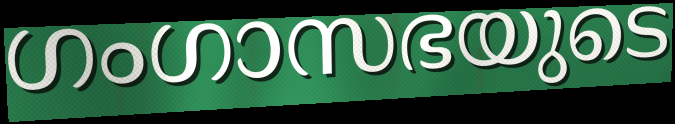
ഗംഗാസഭയുടെ